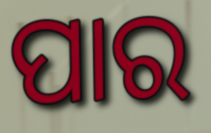
ପାର